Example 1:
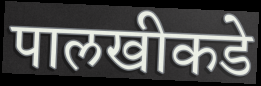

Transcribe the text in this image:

पालखीकडे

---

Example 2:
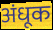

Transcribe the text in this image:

अंधूक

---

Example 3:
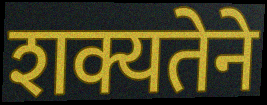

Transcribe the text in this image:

शक्यतेने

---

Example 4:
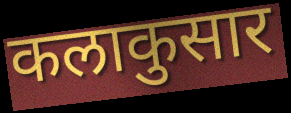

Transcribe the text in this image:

कलाकुसार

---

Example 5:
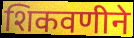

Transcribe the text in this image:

शिकवणीने